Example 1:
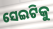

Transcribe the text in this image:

ସେଇଟିକୁ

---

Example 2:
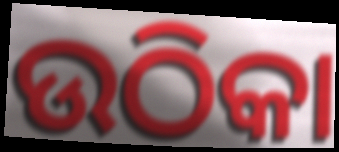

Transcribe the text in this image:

ଉଠିକା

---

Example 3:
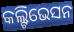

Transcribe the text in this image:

କଲ୍ଟିଭେସନ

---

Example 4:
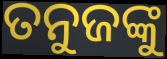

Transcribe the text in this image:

ତନୁଜଙ୍କୁ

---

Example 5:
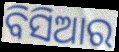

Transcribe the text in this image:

ବିସିଆର